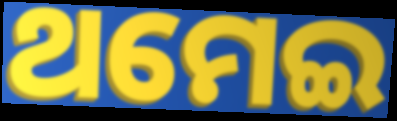
ଥମେଇ